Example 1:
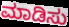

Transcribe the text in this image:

ಮಾಡಿಸು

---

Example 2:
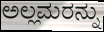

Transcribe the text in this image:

ಅಲ್ಲಮರನ್ನು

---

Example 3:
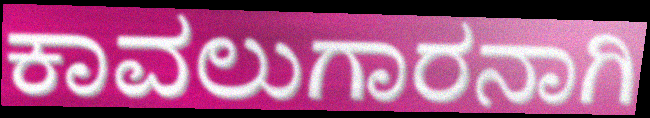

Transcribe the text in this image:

ಕಾವಲುಗಾರನಾಗಿ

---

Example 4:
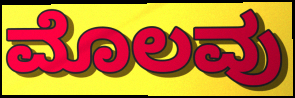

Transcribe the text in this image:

ಮೊಲವು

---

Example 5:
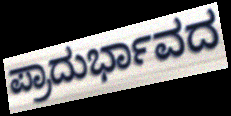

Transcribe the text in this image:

ಪ್ರಾದುರ್ಭಾವದ